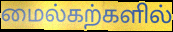
மைல்கற்களில்